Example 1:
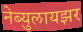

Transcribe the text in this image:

नेब्युलायझर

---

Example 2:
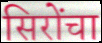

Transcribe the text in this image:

सिरोंचा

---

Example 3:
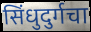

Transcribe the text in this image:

सिंधुदुर्गचा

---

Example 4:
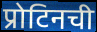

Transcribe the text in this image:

प्रोटिनची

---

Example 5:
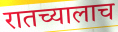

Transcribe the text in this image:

रातच्यालाच